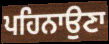
ਪਹਿਨਾਉਣਾ